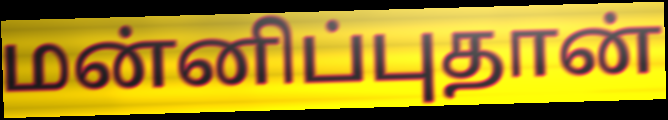
மன்னிப்புதான்